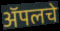
ॲपलचे